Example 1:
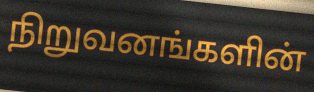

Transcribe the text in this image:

நிறுவனங்களின்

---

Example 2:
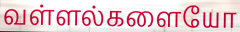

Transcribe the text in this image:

வள்ளல்களையோ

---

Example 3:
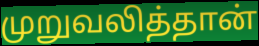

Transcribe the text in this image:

முறுவலித்தான்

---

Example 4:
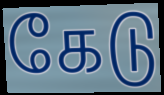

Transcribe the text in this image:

கேடு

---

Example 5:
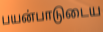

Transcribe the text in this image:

பயன்பாடுடைய